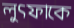
লুৎফাকে